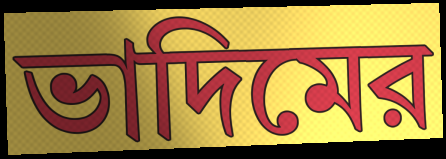
ভাদিমের